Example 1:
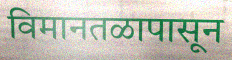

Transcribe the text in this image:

विमानतळापासून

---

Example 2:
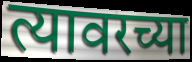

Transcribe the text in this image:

त्यावरच्या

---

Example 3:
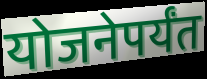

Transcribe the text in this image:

योजनेपर्यंत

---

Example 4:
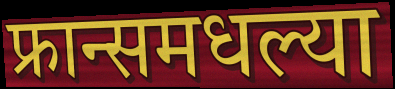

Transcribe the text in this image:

फ्रान्समधल्या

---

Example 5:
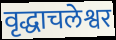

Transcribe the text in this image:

वृद्धाचलेश्वर